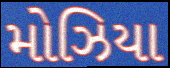
મોઝિયા